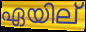
ഏയില്